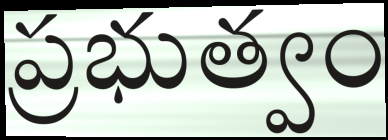
ప్రభుత్వం